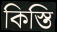
কিস্তি